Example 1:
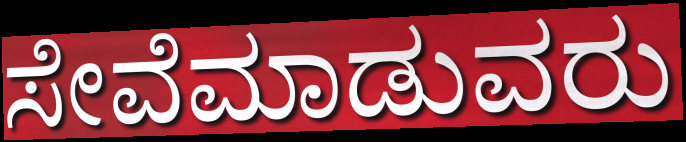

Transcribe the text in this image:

ಸೇವೆಮಾಡುವರು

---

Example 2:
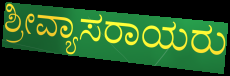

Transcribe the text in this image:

ಶ್ರೀವ್ಯಾಸರಾಯರು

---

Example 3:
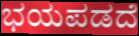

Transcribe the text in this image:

ಭಯಪಡದೆ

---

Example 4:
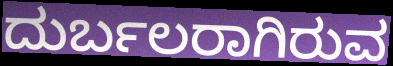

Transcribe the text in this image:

ದುರ್ಬಲರಾಗಿರುವ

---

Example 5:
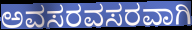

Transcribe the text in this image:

ಅವಸರವಸರವಾಗಿ